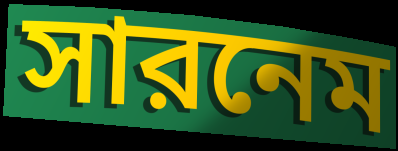
সারনেম